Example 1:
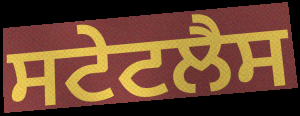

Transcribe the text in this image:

ਸਟੇਟਲੈਸ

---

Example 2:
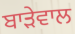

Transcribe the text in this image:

ਬਾੜੇਵਾਲ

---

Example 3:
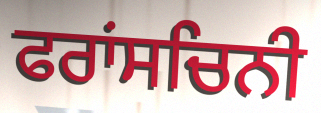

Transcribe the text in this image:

ਫਰਾਂਸਚਿਨੀ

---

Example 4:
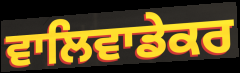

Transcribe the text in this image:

ਵਾਲਿਵਾਡੇਕਰ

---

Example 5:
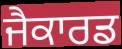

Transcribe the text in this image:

ਜੈਕਾਰਡ